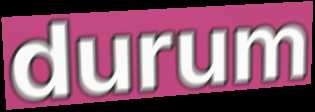
durum